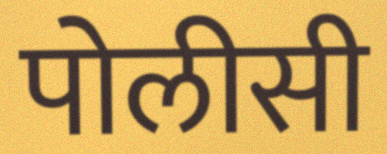
पोलीसी